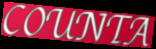
COUNTA